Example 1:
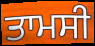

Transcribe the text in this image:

ਤਾਮਸੀ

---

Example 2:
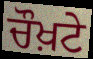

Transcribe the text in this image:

ਚੌਖ਼ਟੇ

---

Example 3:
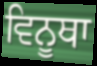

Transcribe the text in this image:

ਵਿਨੂਥਾ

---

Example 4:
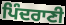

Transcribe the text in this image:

ਪਿੰਦਰਾਣੀ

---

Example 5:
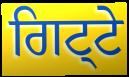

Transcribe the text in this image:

ਗਿਟ੍ਟੇ